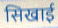
सिखाई